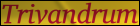
Trivandrum